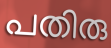
പതിരു